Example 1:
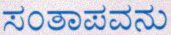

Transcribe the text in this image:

ಸಂತಾಪವನು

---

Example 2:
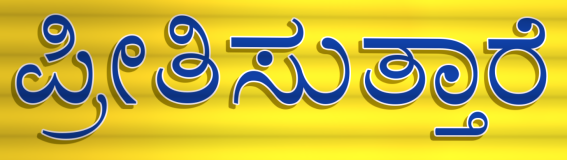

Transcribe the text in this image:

ಪ್ರೀತಿಸುತ್ತಾರೆ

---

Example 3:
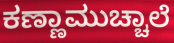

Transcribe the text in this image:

ಕಣ್ಣಾಮುಚ್ಚಾಲೆ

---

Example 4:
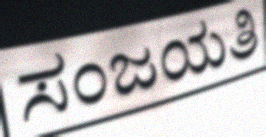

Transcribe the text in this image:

ಸಂಜಯತಿ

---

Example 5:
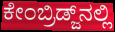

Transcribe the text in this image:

ಕೇಂಬ್ರಿಡ್ಜ್‌ನಲ್ಲಿ